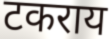
टकराय